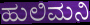
ಹುಲಿಮನಿ